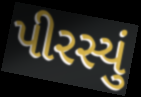
પીરસ્યું